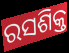
ରସଶିକ୍ତ